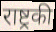
राष्ट्रकी